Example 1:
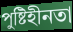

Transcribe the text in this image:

পুষ্টিহীনতা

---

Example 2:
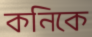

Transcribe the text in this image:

কনিকে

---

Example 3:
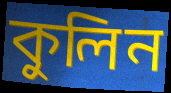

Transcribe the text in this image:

কুলিন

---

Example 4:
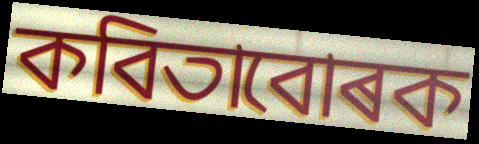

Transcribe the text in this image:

কবিতাবোৰক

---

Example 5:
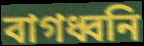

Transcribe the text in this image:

বাগধ্বনি